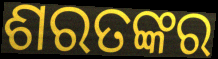
ଶରତଙ୍କର